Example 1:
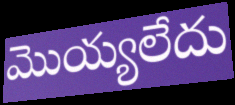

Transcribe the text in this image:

మొయ్యలేదు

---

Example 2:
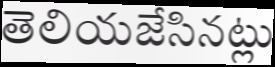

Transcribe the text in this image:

తెలియజేసినట్లు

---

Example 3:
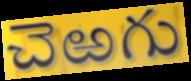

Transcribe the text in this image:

చెఱగు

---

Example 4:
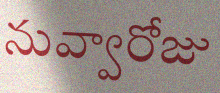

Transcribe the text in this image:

నువ్వారోజు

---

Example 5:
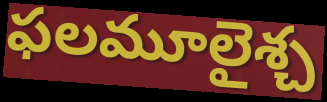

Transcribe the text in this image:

ఫలమూలైశ్చ